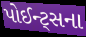
પોઈન્ટ્સના